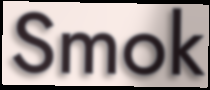
Smok